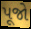
પૂજો